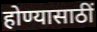
होण्यासाठीं